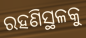
ରହଣିସ୍ଥଳକୁ